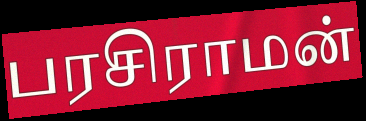
பரசிராமன்